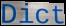
Dict